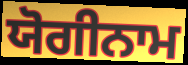
ਯੋਗੀਨਾਮ